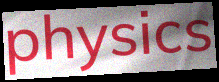
physics